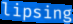
lipsing